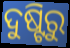
ଦୁଷ୍ଟିରୁ